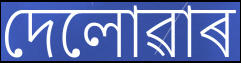
দেলোৱাৰ